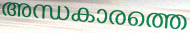
അന്ധകാരത്തെ